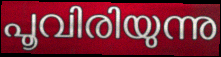
പൂവിരിയുന്നു